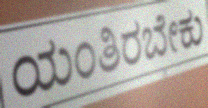
ಯಂತಿರಬೇಕು